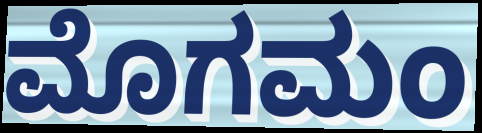
ಮೊಗಮಂ